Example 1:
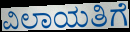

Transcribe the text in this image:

ವಿಲಾಯತಿಗೆ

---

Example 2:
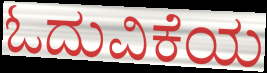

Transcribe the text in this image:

ಓದುವಿಕೆಯ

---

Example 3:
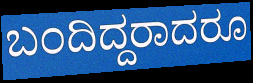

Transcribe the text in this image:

ಬಂದಿದ್ದರಾದರೂ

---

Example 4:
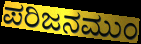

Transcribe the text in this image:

ಪರಿಜನಮುಂ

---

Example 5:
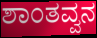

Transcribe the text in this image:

ಶಾಂತವ್ವನ